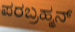
ಪರಬ್ರಹ್ಮನ್